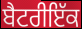
ਬੈਟਰੀਇੱਕ